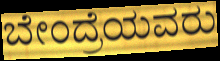
ಬೇಂದ್ರೆಯವರು